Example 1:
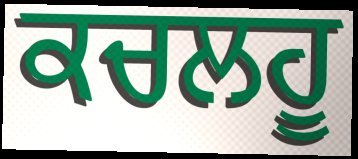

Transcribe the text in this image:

ਕਚਲਹੂ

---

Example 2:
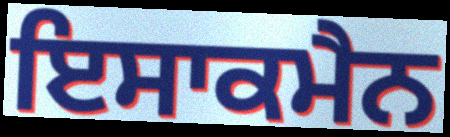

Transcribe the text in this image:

ਇਸਾਕਮੈਨ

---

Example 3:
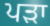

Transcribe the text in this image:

ਪੜਾ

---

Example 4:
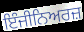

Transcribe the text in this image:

ਇੰਜੀਨਿਅਰਜ਼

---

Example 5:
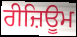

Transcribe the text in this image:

ਰੀਜ਼ਿਊਮ